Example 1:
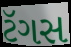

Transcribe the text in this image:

ટૅગસ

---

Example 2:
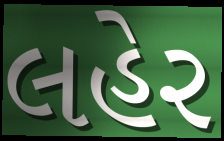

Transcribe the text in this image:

લહેર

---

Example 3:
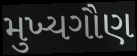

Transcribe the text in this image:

મુખ્યગૌણ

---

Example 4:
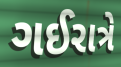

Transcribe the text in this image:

ગઈરાત્રે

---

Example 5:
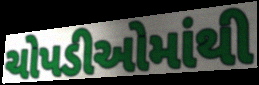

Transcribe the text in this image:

ચોપડીઓમાંથી